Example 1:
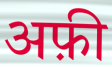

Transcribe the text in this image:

अफ़ी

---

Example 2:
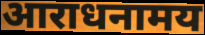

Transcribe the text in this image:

आराधनामय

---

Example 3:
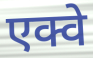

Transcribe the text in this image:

एक्वे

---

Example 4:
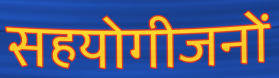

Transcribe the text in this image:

सहयोगीजनों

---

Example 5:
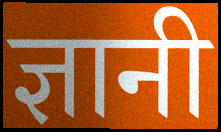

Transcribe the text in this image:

ज्ञानी